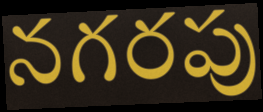
నగరపు